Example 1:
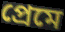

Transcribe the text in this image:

প্রেমে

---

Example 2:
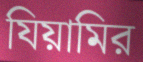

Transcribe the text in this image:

যিয়ামির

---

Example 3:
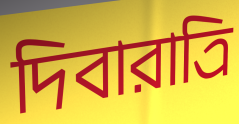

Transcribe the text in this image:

দিবারাত্রি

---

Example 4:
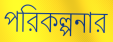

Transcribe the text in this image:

পরিকল্পনার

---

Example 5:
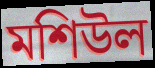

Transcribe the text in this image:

মশিউল